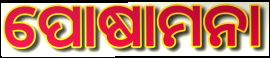
ପୋଷାମନା